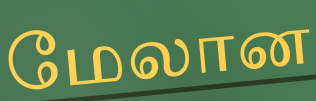
மேலான